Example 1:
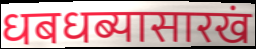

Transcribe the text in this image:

धबधब्यासारखं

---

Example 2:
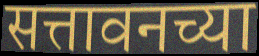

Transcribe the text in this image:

सत्तावनच्या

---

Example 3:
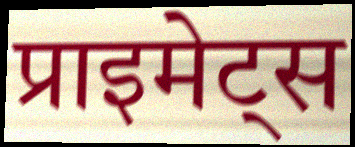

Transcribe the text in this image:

प्राइमेट्स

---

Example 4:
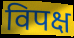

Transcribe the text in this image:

विपक्ष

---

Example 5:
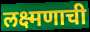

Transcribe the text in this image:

लक्ष्मणाची